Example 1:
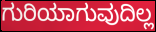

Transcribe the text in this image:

ಗುರಿಯಾಗುವುದಿಲ್ಲ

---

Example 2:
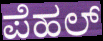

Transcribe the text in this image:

ಪೆಹಲ್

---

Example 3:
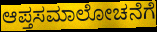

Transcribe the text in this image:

ಆಪ್ತಸಮಾಲೋಚನೆಗೆ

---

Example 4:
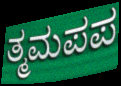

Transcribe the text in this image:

ತ್ಮಮಪಪ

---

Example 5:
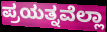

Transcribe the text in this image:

ಪ್ರಯತ್ನವೆಲ್ಲಾ